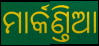
ମାର୍କଣ୍ତିଆ